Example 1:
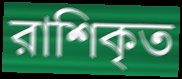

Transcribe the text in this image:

রাশিকৃত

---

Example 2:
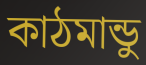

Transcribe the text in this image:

কাঠমান্ডু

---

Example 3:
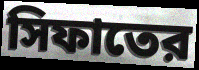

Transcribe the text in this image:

সিফাতের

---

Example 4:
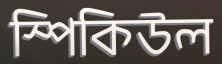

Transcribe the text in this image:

স্পিকিউল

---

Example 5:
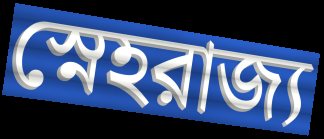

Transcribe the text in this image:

স্নেহরাজ্য